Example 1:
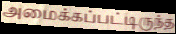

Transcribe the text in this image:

அமைக்கப்பட்டிருந்த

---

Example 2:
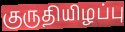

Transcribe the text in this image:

குருதியிழப்பு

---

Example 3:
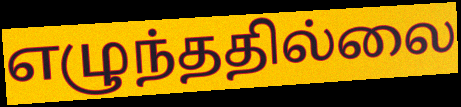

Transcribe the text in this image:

எழுந்ததில்லை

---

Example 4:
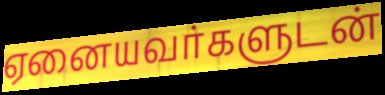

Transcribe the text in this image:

ஏனையவர்களுடன்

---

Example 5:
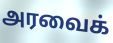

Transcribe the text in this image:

அரவைக்